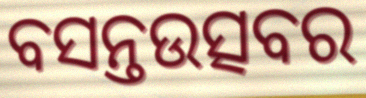
ବସନ୍ତଉତ୍ସବର